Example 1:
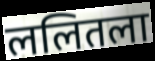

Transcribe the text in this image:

ललितला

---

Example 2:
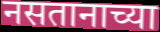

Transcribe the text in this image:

नसतानाच्या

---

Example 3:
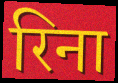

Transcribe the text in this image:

रिना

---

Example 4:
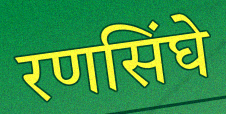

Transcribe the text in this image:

रणसिंघे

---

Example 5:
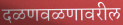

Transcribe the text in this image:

दळणवळणावरील